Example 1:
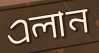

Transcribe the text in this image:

এলান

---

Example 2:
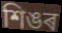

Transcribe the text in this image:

শিঙৰ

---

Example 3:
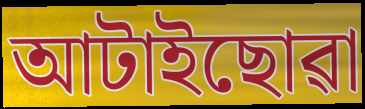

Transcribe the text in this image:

আটাইছোৱা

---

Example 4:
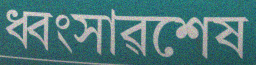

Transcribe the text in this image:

ধ্বংসাৱশেষ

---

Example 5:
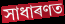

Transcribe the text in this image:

সাধাৰণত